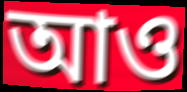
আও